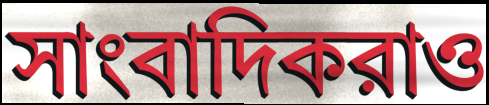
সাংবাদিকরাও